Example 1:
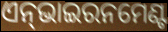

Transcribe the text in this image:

ଏନ୍‌ଭାଇରନମେଣ୍ଟ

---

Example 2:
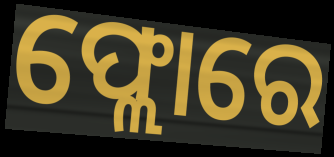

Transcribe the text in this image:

ଫ୍ଲୋରେ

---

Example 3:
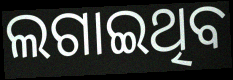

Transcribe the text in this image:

ଲଗାଇଥିବ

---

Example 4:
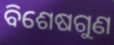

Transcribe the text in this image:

ବିଶେଷଗୁଣ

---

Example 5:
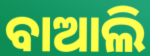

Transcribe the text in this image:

ବାଆଲି